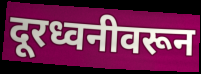
दूरध्वनीवरून